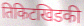
तिकिटखिडकी